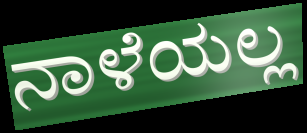
ನಾಳೆಯಲ್ಲ